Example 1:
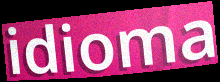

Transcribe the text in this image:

idioma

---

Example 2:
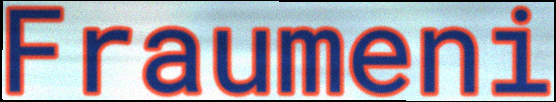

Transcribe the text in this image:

Fraumeni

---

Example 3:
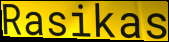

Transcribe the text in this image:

Rasikas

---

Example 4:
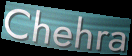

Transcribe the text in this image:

Chehra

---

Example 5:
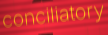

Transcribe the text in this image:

conciliatory